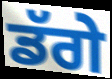
ਡੱਗੇ